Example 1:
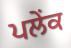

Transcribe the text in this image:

ਪਲੇਂਕ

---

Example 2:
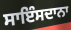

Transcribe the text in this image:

ਸਾਇੰਸਦਾਨਾ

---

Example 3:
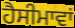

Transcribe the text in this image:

ਹੈਸੀਮਾਵਾਂ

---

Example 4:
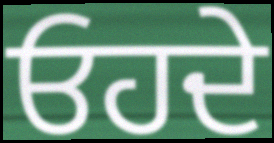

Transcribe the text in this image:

ਓਹਦੇ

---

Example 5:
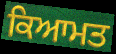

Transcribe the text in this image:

ਕਿਆਮਤ